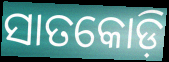
ସାତକୋଡ଼ି